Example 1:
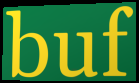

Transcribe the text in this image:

buf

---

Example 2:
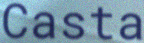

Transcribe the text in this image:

Casta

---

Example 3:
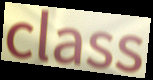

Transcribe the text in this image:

class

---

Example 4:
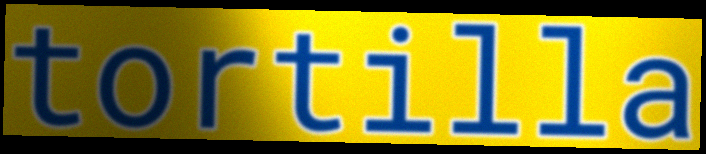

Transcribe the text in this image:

tortilla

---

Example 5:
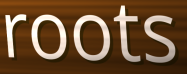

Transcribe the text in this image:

roots